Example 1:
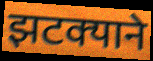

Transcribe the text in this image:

झटक्याने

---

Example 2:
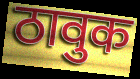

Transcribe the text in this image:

ठावुक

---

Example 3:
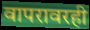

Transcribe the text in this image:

वापरावरही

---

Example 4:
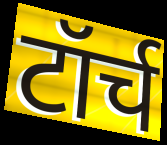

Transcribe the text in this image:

टॉर्च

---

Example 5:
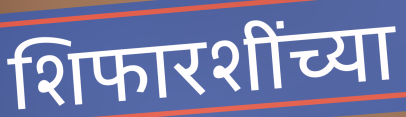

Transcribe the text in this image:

शिफारशींच्या